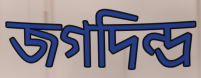
জগদিন্দ্র